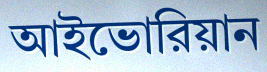
আইভোরিয়ান